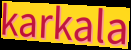
karkala